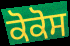
ਕੋਕੋਸ